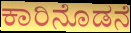
ಕಾರಿನೊಡನೆ